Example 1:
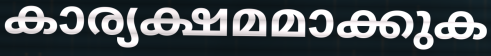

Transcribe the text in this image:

കാര്യക്ഷമമാക്കുക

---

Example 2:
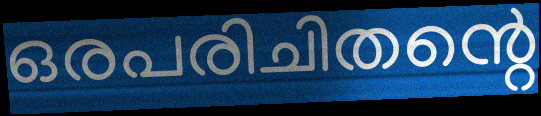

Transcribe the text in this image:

ഒരപരിചിതന്റെ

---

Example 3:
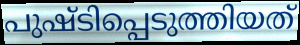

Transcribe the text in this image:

പുഷ്ടിപ്പെടുത്തിയത്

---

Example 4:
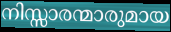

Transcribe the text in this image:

നിസ്സാരന്മാരുമായ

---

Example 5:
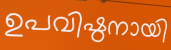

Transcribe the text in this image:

ഉപവിഷ്ഠനായി